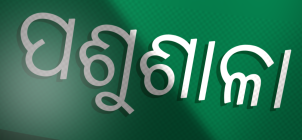
ପଶୁଶାଳା